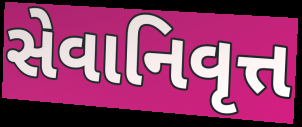
સેવાનિવૃત્ત